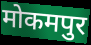
मोकमपुर